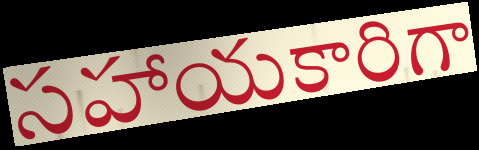
సహాయకారిగా